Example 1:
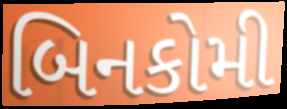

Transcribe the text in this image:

બિનકોમી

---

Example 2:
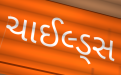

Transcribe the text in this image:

ચાઈલ્ડ્સ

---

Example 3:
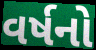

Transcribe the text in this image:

વર્ષનો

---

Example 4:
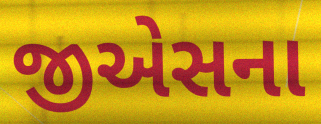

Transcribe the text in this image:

જીએસના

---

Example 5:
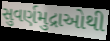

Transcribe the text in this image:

સુવર્ણમુદ્રાઓથી